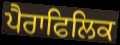
ਪੈਰਾਫਿਲਿਕ